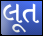
લૂત